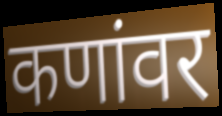
कणांवर